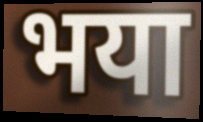
भया